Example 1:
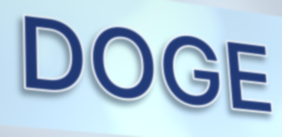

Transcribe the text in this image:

DOGE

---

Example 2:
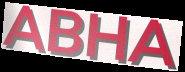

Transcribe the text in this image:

ABHA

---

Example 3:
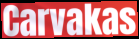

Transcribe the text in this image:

Carvakas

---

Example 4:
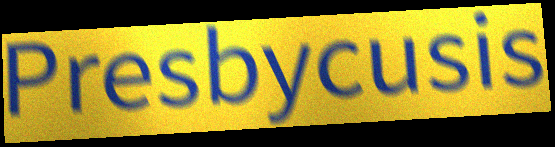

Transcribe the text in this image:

Presbycusis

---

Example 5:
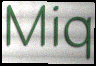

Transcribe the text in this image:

Miq